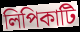
লিপিকাটি